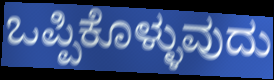
ಒಪ್ಪಿಕೊಳ್ಳುವುದು